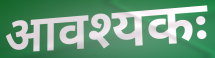
आवश्यकः